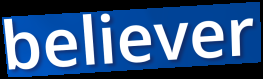
believer